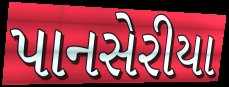
પાનસેરીયા